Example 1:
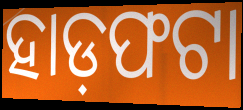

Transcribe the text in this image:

ହାଡ଼ଫଟା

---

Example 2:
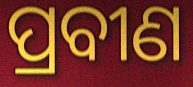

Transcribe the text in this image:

ପ୍ରବୀଣ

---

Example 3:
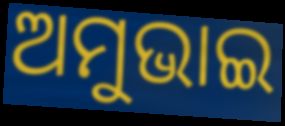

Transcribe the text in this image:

ଅମୁଭାଇ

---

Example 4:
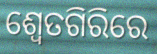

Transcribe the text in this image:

ଶ୍ୱେତଗିରିରେ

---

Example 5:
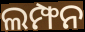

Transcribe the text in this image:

ଲମ୍ଫନ